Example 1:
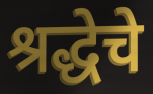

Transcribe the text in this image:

श्रद्धेचे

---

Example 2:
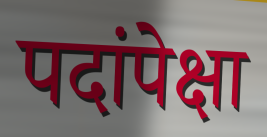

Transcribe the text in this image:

पदांपेक्षा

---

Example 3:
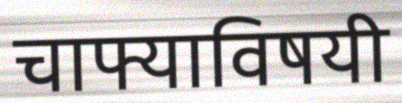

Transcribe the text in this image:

चाफ्याविषयी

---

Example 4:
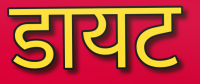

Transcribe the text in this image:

डायट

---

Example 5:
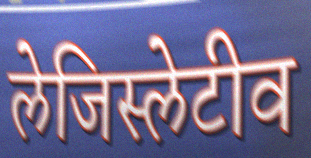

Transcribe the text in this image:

लेजिस्लेटीव